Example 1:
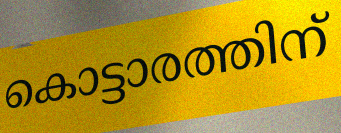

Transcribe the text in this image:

കൊട്ടാരത്തിന്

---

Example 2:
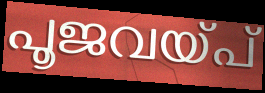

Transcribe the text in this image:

പൂജവയ്പ്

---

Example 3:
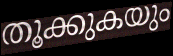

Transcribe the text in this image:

തൂക്കുകയും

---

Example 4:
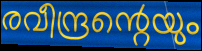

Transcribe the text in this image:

രവീന്ദ്രന്റെയും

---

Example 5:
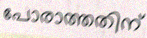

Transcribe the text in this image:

പോരാത്തതിന്